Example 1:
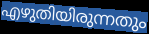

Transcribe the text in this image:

എഴുതിയിരുന്നതും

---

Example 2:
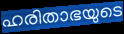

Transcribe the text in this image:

ഹരിതാഭയുടെ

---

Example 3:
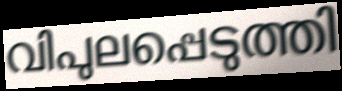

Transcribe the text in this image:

വിപുലപ്പെടുത്തി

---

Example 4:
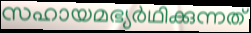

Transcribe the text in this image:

സഹായമഭ്യർഥിക്കുന്നത്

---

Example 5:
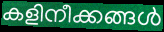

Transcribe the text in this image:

കളിനീക്കങ്ങൾ